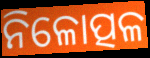
ନିଳୋତ୍ପଳ